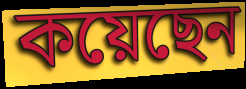
কয়েছেন